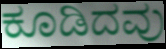
ಕೂಡಿದವು